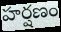
హర్షణం